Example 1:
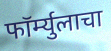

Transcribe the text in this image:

फॉर्म्युलाचा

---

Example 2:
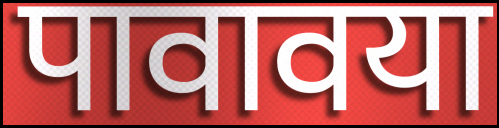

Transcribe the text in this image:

पावावया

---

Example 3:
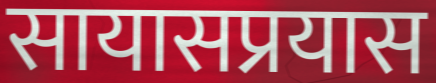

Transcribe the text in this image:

सायासप्रयास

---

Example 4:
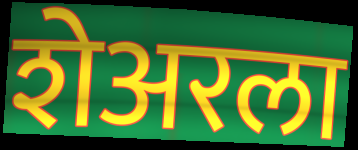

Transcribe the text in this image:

शेअरला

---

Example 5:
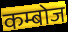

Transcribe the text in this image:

कम्बोज